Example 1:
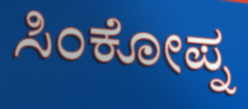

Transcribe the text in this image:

ಸಿಂಕೋಪ್ನ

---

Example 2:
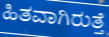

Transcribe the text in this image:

ಹಿತವಾಗಿರುತ್ತೆ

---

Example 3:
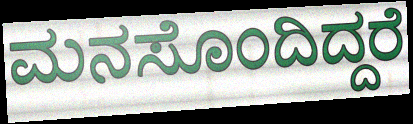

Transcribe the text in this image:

ಮನಸೊಂದಿದ್ದರೆ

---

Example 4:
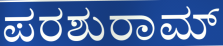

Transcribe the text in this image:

ಪರಶುರಾಮ್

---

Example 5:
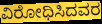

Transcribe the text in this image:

ವಿರೋಧಿಸಿದವರ